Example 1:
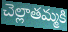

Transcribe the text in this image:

చెల్లాతమ్మకి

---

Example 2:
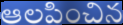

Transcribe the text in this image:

ఆలపించిన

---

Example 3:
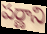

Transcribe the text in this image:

పర్ణాని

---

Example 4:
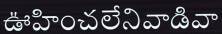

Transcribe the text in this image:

ఊహించలేనివాడివా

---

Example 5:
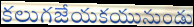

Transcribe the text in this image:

కలుగజేయకయునుండు